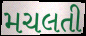
મચલતી